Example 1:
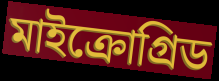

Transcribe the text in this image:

মাইক্রোগ্রিড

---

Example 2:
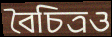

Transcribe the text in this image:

বৈচিত্রও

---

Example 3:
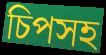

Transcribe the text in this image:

চিপসহ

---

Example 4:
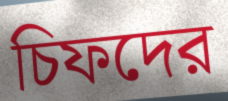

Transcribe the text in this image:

চিফদের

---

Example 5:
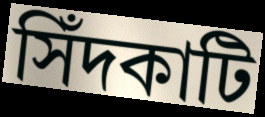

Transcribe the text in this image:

সিঁদকাটি